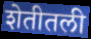
शेतीतली